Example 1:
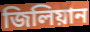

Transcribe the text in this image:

জিলিয়ান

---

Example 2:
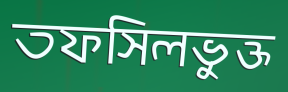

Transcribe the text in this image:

তফসিলভুক্ত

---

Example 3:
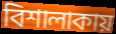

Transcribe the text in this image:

বিশালাকায়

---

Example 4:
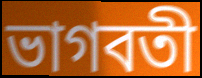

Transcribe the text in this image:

ভাগবতী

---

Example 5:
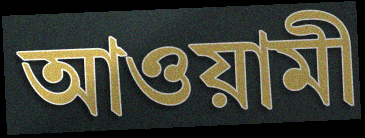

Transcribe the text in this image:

আওয়ামী